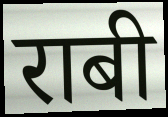
राबी